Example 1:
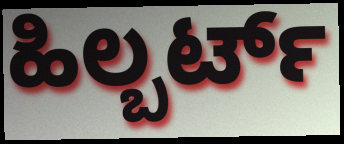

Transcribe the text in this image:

ಹಿಲ್ಬರ್ಟ್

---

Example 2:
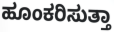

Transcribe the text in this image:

ಹೂಂಕರಿಸುತ್ತಾ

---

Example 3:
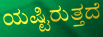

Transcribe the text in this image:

ಯಷ್ಟಿರುತ್ತದೆ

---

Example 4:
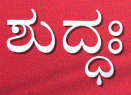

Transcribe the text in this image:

ಶುದ್ಧಃ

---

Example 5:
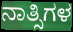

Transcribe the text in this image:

ನಾತ್ಸಿಗಳ